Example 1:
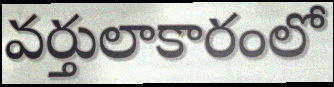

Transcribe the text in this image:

వర్తులాకారంలో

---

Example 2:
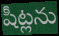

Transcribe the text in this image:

షీట్లను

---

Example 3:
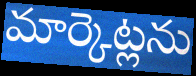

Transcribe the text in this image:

మార్కెట్లను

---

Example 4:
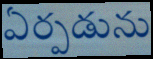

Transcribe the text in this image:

ఏర్పడును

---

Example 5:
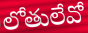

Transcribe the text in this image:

లోతులేవో